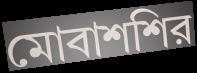
মোবাশশির